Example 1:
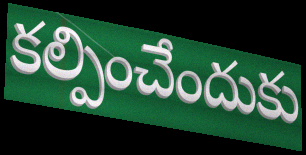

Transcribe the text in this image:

కల్పించేందుకు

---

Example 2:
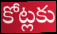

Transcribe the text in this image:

కోట్లకు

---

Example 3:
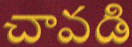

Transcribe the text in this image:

చావడి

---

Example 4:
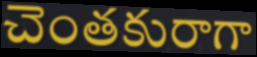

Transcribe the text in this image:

చెంతకురాగా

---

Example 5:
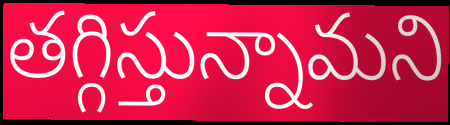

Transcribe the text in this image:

తగ్గిస్తున్నామని